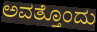
ಅವತ್ತೊಂದು